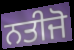
ਨਤੀਜੋ